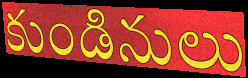
కుండినులు